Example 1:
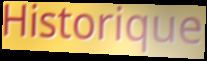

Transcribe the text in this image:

Historique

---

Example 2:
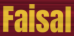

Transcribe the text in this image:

Faisal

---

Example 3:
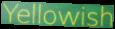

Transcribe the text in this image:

Yellowish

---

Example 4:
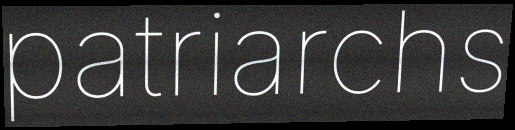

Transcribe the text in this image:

patriarchs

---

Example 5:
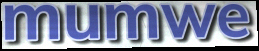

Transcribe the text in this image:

mumwe